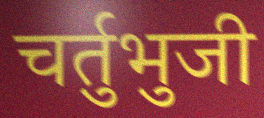
चर्तुभुजी